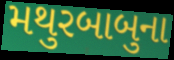
મથુરબાબુના